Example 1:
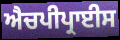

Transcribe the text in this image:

ਐਚਪੀਪ੍ਰਾਈਸ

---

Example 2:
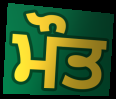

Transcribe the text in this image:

ਮੌਤ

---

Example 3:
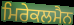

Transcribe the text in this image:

ਮਿਰੇਕਲਮੈਨ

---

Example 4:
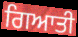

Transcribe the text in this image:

ਗਿਆਤੀ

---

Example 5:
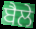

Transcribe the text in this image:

ਬੈਲੇ